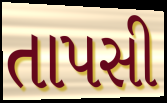
તાપસી